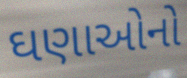
ઘણાઓનો